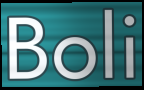
Boli